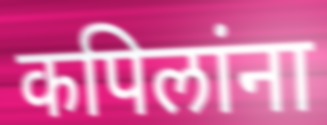
कपिलांना